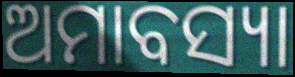
ଅମାବସ୍ୟା